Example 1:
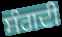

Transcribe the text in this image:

ਸੰਗਦੀ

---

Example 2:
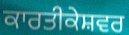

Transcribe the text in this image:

ਕਾਰਤੀਕੇਸ਼ਵਰ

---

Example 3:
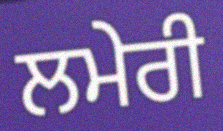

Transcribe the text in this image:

ਲਮੇਰੀ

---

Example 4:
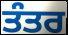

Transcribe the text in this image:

ਤੰਤਰ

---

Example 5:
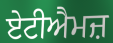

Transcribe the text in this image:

ਏਟੀਐਮਜ਼